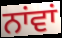
ਨਾਂਵਾਂ